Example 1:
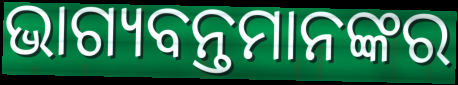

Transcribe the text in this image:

ଭାଗ୍ୟବନ୍ତମାନଙ୍କର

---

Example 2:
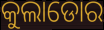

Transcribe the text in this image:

କୁଲାଡୋର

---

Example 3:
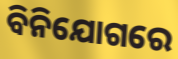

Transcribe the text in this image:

ବିନିଯୋଗରେ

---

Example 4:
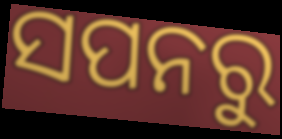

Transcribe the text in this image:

ସପନରୁ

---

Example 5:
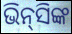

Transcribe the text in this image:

ଭିନ୍‍ସିଙ୍କ